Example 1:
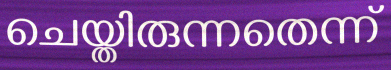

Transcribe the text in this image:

ചെയ്തിരുന്നതെന്ന്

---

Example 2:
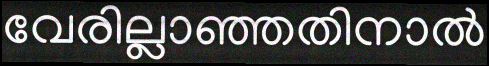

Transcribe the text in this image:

വേരില്ലാഞ്ഞതിനാൽ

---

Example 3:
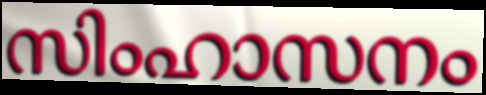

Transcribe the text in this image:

സിംഹാസനം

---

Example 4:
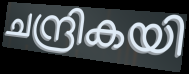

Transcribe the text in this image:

ചന്ദ്രികയി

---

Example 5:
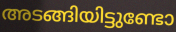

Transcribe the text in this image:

അടങ്ങിയിട്ടുണ്ടോ